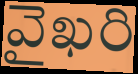
వైఖరి